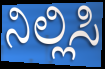
ನಿಲ್ಲಿಸಿ